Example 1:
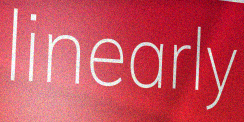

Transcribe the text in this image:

linearly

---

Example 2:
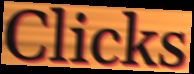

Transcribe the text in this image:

Clicks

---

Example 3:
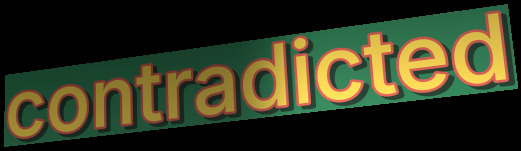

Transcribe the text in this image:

contradicted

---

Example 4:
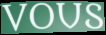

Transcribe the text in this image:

VOUS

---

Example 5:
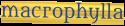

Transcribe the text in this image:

macrophylla